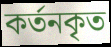
কর্তনকৃত